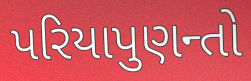
પરિયાપુણન્તો